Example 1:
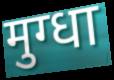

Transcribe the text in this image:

मुग्धा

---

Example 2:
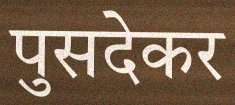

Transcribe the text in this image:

पुसदेकर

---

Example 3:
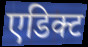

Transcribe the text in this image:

एडिक्ट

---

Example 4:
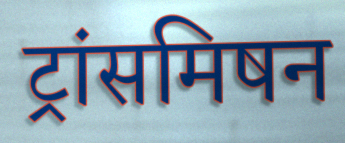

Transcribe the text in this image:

ट्रांसमिषन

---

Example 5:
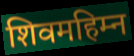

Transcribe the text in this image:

शिवमहिम्न